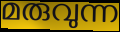
മരുവുന്ന